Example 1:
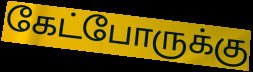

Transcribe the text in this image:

கேட்போருக்கு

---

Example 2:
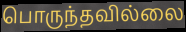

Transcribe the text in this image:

பொருந்தவில்லை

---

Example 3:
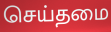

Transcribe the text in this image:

செய்தமை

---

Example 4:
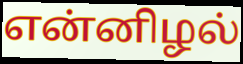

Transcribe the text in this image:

என்னிழல்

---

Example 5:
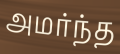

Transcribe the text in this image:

அமர்ந்த